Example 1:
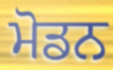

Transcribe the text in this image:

ਮੋਡਨ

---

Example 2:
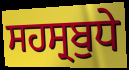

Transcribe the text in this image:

ਸਹਸ੍ਰਬੁਧੇ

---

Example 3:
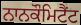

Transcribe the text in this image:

ਨਾਨਕੌਮਿਟੈਂਟ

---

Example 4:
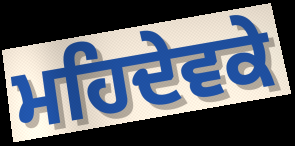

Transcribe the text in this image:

ਮਹਿਦੇਵਕੇ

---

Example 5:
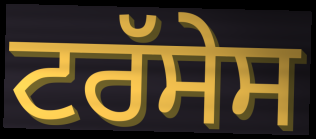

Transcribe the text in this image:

ਟਰੱਸੇਸ